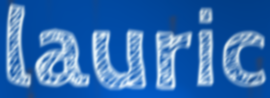
lauric